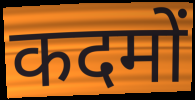
कदमों